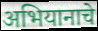
अभियानाचे